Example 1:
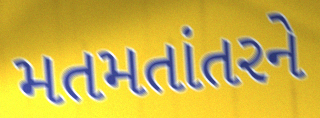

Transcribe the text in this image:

મતમતાંતરને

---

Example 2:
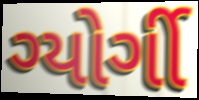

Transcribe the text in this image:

ગ્યોર્ગી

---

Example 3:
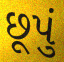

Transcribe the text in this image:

છૂપું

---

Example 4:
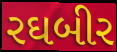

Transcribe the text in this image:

રઘબીર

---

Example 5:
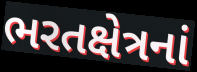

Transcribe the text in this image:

ભરતક્ષેત્રનાં